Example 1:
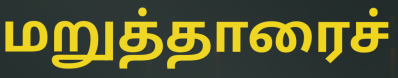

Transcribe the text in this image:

மறுத்தாரைச்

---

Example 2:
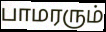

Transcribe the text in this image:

பாமரரும்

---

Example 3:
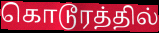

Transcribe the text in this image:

கொடூரத்தில்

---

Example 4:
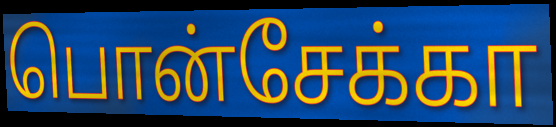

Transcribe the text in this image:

பொன்சேக்கா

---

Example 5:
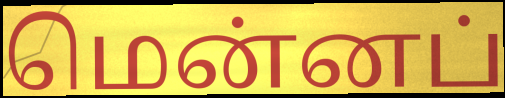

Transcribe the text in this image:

மென்னப்